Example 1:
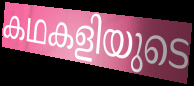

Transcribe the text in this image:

കഥകളിയുടെ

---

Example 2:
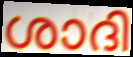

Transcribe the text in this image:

ശാദി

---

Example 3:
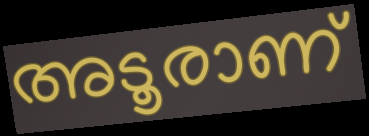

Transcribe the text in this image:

അടൂരാണ്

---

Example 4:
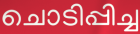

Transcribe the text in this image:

ചൊടിപ്പിച്ച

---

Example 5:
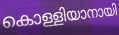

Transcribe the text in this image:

കൊള്ളിയാനായി